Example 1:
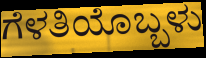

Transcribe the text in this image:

ಗೆಳತಿಯೊಬ್ಬಳು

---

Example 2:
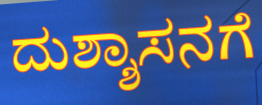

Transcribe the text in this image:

ದುಶ್ಶಾಸನಗೆ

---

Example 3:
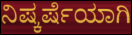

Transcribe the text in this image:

ನಿಷ್ಕರ್ಷೆಯಾಗಿ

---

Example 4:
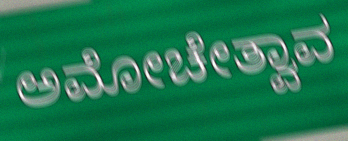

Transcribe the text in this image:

ಅಮೋಚೇತ್ವಾವ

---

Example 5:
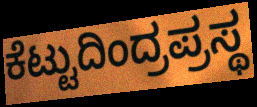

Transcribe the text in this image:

ಕೆಟ್ಟುದಿಂದ್ರಪ್ರಸ್ಥ